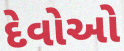
દેવોઓ